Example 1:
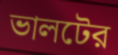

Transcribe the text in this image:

ভালটের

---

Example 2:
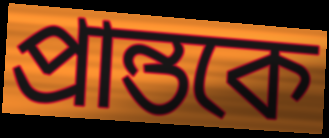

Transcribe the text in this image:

প্রান্তকে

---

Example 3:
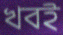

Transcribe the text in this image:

খবই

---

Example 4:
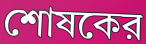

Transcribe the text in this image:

শোষকের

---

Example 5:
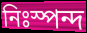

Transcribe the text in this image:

নিঃস্পন্দ